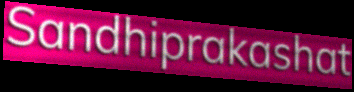
Sandhiprakashat